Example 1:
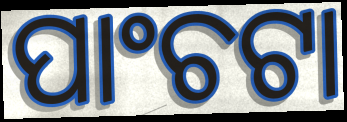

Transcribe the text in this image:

ପାଂଚଟା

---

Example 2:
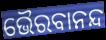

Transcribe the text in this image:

ଭୈରବାନନ୍ଦ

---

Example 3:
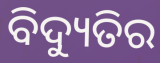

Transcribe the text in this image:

ବିଦ୍ୟୁତିର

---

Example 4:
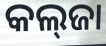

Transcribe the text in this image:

କଲ୍‌ଜା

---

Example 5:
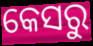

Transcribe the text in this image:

କେସରୁ